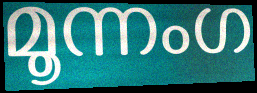
മൂന്നംഗ